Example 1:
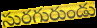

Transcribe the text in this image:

సురగురుండు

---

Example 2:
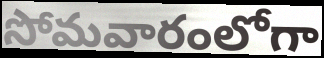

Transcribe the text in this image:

సోమవారంలోగా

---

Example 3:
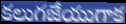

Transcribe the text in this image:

కలుగజేయుగాక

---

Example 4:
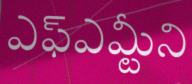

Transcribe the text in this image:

ఎఫ్ఎమ్టీని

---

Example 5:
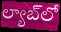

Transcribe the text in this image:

ల్యాబ్‌లో